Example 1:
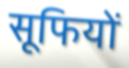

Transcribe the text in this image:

सूफियों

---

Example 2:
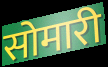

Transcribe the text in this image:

सोमारी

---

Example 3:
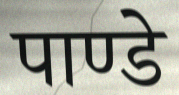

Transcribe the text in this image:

पाण्डे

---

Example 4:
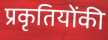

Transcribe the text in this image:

प्रकृतियोंकी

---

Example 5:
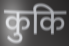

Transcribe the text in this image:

कुकि